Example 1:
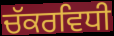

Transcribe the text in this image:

ਚੱਕਰਵਿਧੀ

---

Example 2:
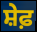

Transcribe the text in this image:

ਸ਼ੇਫ਼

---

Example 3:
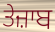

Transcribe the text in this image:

ਤੇਜ਼ਾਬ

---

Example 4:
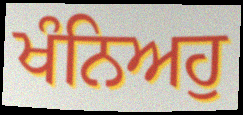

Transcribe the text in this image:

ਖੰਨਿਅਹੁ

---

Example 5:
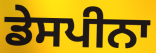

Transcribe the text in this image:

ਡੇਸਪੀਨਾ